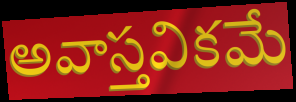
అవాస్తవికమే